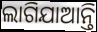
ଲାଗିଯାଆନ୍ତି